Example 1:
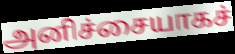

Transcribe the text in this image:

அனிச்சையாகச்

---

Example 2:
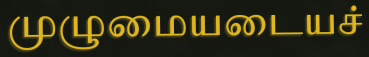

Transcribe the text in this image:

முழுமையடையச்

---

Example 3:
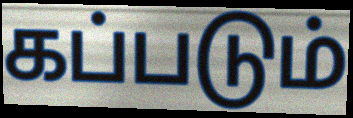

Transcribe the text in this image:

கப்படும்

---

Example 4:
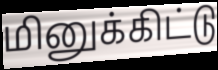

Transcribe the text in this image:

மினுக்கிட்டு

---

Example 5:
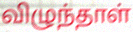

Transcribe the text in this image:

விழுந்தாள்